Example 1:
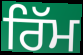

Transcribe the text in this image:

ਰਿੱਮ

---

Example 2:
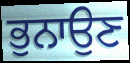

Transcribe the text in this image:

ਭੁਨਾਉਣ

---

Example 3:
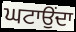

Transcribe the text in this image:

ਘਟਾਉਂਦਾ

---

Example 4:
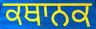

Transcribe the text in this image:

ਕਥਾਨਕ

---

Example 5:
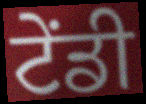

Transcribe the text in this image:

ਟੇਂਡੀ